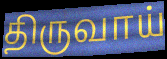
திருவாய்